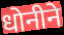
धोनीने